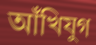
আঁখিযুগ